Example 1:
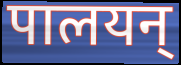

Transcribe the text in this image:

पालयन्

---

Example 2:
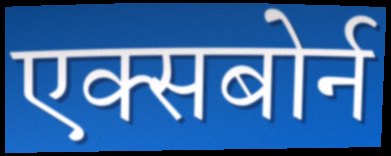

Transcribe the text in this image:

एक्सबोर्न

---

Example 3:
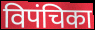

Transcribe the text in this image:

विपंचिका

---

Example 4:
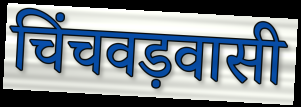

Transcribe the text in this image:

चिंचवड़वासी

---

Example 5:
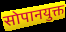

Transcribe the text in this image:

सोपानयुक्त